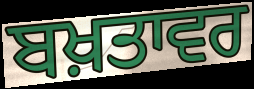
ਬਖ਼ਤਾਵਰ